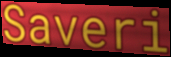
Saveri